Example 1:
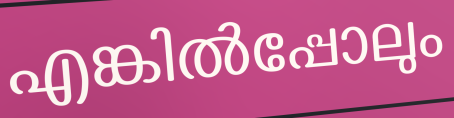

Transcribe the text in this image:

എങ്കിൽപ്പോലും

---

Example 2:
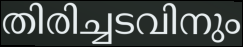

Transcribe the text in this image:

തിരിച്ചടവിനും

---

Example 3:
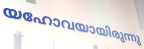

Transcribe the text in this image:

യഹോവയായിരുന്നു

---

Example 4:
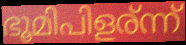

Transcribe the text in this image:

ഭൂമിപിളര്ന്ന്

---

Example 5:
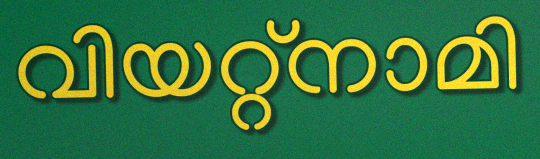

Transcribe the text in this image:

വിയറ്റ്നാമി